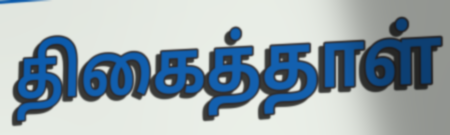
திகைத்தாள்